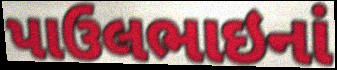
પાઉલભાઇનાં